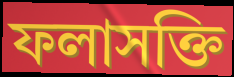
ফলাসক্তি